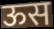
ऊस